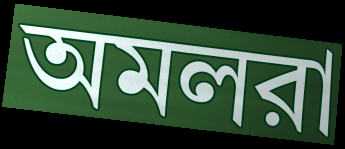
অমলরা